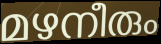
മഴനീരും